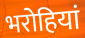
भरोहियां